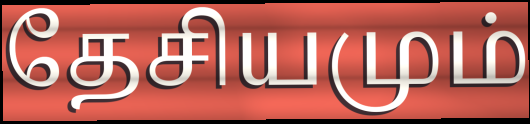
தேசியமும்